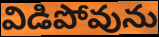
విడిపోవును